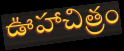
ఊహాచిత్రం